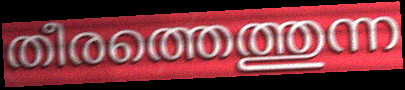
തീരത്തെത്തുന്ന